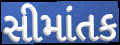
સીમાંતક